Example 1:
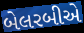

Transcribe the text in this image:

બેલરબીએ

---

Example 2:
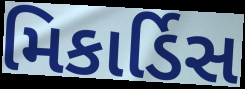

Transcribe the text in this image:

મિકાર્ડિસ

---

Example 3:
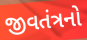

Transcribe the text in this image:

જીવતંત્રનો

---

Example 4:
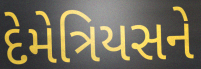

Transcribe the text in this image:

દેમેત્રિયસને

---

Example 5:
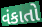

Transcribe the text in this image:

વંકાતો